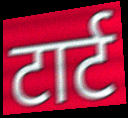
टार्ट